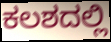
ಕಲಶದಲ್ಲಿ